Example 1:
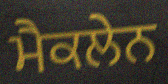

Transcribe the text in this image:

ਮੈਕਲੇਨ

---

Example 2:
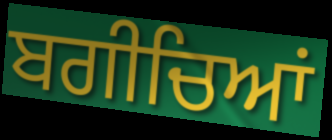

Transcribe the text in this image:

ਬਗੀਚਿਆਂ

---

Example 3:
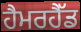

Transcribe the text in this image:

ਹੈਮਰਹੈੱਡ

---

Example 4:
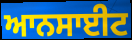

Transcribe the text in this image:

ਆਨਸਾਈਟ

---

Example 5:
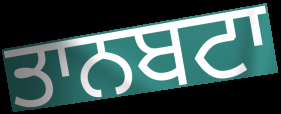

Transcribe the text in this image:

ਤਾਨਬਟਾ